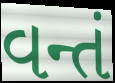
વન્તં